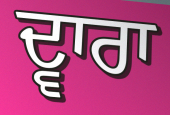
ਦ੍ਵਾਰਾ